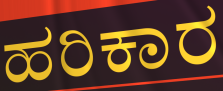
ಹರಿಕಾರ